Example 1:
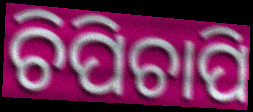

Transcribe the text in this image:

ଚିପିଚାପି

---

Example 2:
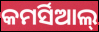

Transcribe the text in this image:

କମର୍ସିଆଲ୍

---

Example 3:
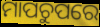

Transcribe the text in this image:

ମାପଚୁପରେ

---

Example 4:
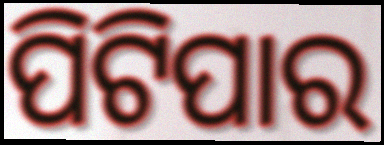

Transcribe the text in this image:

ପିଟିପାର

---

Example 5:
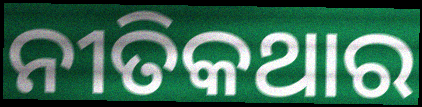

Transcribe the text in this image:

ନୀତିକଥାର